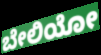
ಬೇಲಿಯೋ